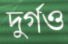
দুর্গও